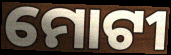
ମୋଟୀ